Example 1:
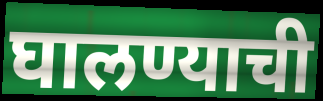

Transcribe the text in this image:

घालण्याची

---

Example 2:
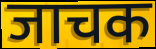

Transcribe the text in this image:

जाचक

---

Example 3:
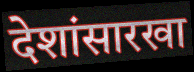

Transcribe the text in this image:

देशांसारखा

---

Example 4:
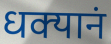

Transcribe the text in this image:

धक्यानं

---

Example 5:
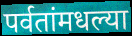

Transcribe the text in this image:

पर्वतांमधल्या